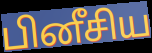
பினீசிய